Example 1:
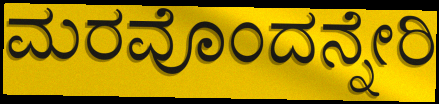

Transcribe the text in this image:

ಮರವೊಂದನ್ನೇರಿ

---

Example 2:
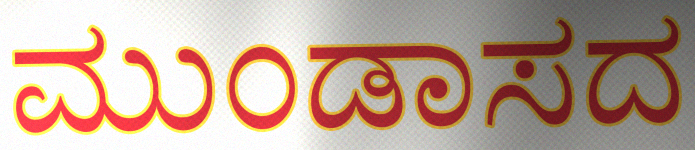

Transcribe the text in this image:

ಮುಂಡಾಸದ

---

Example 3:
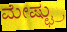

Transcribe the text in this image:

ಮೇಷ್ಟ್ರು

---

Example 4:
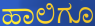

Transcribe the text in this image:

ಹಾಲಿಗೂ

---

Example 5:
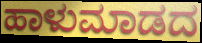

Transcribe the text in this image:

ಹಾಳುಮಾಡದ